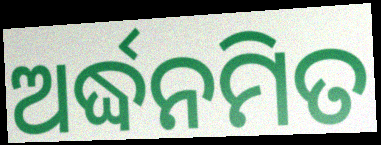
ଅର୍ଦ୍ଧନମିତ